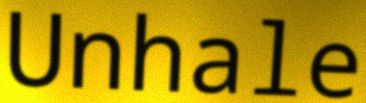
Unhale